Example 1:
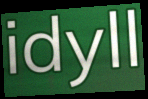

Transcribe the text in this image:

idyll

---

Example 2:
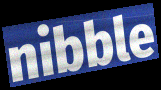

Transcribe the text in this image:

nibble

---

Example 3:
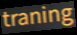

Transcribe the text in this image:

traning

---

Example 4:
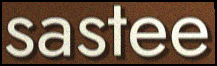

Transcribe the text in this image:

sastee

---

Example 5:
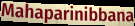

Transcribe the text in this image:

Mahaparinibbana